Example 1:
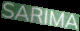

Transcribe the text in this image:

SARIMA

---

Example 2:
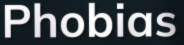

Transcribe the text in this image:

Phobias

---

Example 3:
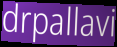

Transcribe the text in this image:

drpallavi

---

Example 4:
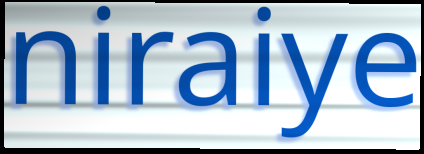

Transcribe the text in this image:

niraiye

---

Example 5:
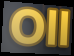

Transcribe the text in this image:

Oll